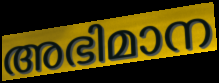
അഭിമാന